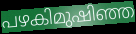
പഴകിമുഷിഞ്ഞ